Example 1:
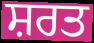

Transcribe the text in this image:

ਸ਼ਰਤ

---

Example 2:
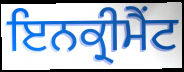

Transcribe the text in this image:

ਇਨਕ੍ਰੀਮੈਂਟ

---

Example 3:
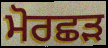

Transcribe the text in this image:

ਮੋਰਛੜ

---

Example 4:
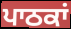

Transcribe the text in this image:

ਪਾਠਕਾਂ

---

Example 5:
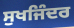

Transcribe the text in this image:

ਸੁਖਜਿੰਦਰ